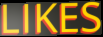
LIKES